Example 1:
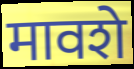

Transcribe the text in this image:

मावशे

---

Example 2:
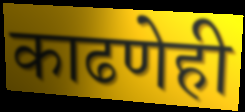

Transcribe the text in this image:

काढणेही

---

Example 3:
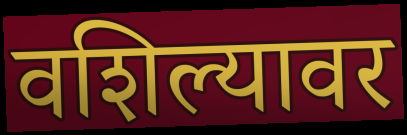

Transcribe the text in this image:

वशिल्यावर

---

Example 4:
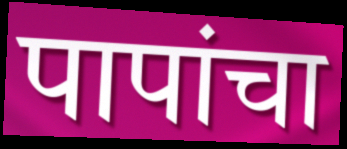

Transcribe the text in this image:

पापांचा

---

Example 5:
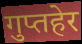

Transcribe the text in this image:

गुप्तहेर